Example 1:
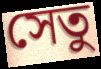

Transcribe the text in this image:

সেতু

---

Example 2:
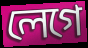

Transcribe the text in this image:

লেগে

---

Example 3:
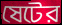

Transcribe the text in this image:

ষেটের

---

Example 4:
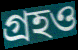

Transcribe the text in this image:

গ্রহও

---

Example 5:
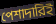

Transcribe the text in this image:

পেশাদারিই